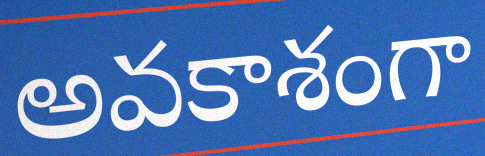
అవకాశంగా